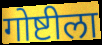
गोष्टीला